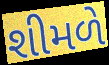
શીમળે